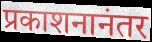
प्रकाशनानंतर